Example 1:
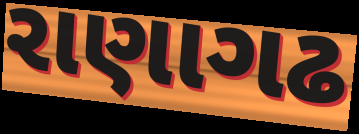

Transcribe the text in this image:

રાણાગઢ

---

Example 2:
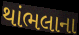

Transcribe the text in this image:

થાંભલાના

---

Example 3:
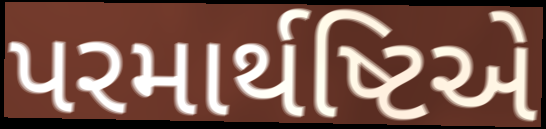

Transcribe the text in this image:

પરમાર્થષ્ટિએ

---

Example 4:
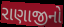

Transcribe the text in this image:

રાણાજીનો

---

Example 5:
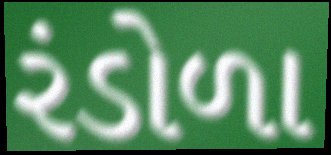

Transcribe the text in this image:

રંડોળા